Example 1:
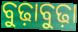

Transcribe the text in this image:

ବୁଢ଼ାବୁଢ଼ା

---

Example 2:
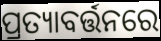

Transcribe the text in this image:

ପ୍ରତ୍ୟାବର୍ତ୍ତନରେ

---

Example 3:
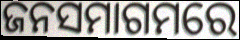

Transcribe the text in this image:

ଜନସମାଗମରେ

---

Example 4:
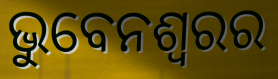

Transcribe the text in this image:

ଭୁବେନଶ୍ବରର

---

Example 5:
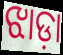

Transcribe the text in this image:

ଝାଡ଼ା